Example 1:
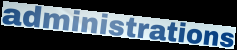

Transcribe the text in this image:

administrations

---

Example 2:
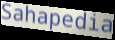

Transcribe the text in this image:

Sahapedia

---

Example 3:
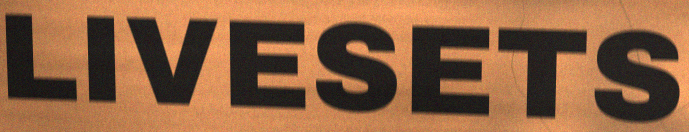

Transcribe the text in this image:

LIVESETS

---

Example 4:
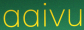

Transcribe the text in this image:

aaivu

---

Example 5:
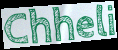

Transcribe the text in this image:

Chheli